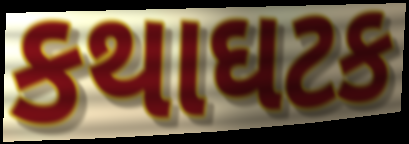
કથાઘટક